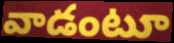
వాడంటూ